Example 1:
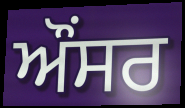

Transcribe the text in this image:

ਔਂਸਰ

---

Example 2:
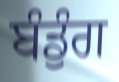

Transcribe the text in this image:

ਬੰਡੁੰਗ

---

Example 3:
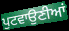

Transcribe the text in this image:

ਪੁਟਵਾਉਣੀਆਂ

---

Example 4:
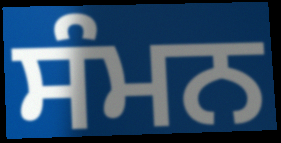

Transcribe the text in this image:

ਸੰਮਨ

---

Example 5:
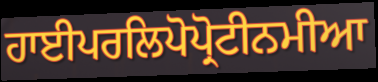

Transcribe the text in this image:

ਹਾਈਪਰਲਿਪੋਪ੍ਰੋਟੀਨਮੀਆ